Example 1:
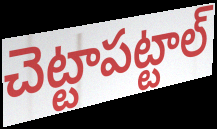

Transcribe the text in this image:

చెట్టాపట్టాల్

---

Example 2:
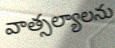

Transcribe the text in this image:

వాత్సల్యాలను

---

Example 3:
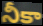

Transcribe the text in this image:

నీకా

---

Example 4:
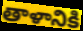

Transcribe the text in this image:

తాళానికి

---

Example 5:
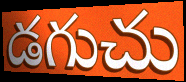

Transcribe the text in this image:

డగుచు